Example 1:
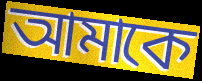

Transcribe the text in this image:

আমাকে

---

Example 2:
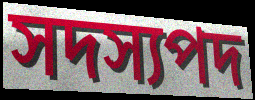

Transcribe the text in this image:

সদস্যপদ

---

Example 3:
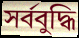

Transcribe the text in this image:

সৰ্ববুদ্ধি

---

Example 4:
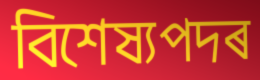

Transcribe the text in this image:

বিশেষ্যপদৰ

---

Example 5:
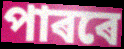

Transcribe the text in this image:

পাৰৰে